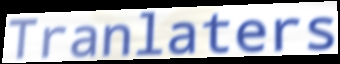
Tranlaters